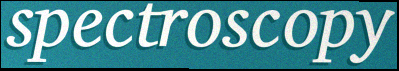
spectroscopy